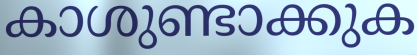
കാശുണ്ടാക്കുക